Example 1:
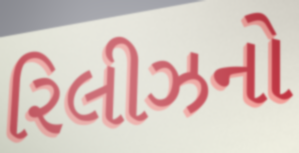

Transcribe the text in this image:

રિલીઝનો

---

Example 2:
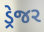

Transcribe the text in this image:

ડ્રેજર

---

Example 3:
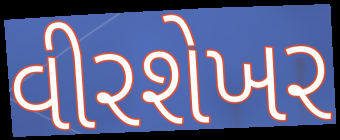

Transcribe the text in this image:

વીરશેખર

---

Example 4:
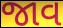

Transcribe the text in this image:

જાવ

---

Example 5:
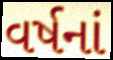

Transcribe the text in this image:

વર્ષનાં